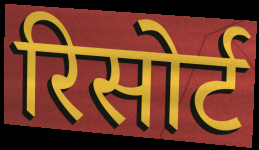
रिसोर्ट